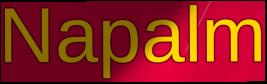
Napalm